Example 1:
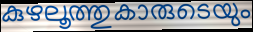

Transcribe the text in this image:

കുഴലൂത്തുകാരുടെയും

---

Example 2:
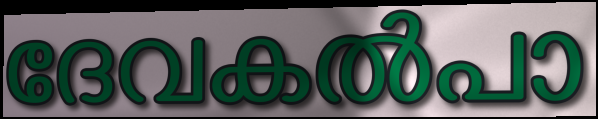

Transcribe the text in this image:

ദേവകൽപാ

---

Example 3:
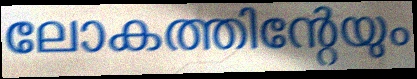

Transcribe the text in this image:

ലോകത്തിന്റേയും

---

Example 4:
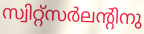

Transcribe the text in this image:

സ്വിറ്റ്സർലന്റിനു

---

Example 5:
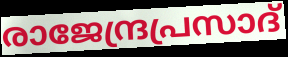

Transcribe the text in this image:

രാജേന്ദ്രപ്രസാദ്